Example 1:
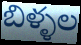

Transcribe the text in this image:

బిళ్ళల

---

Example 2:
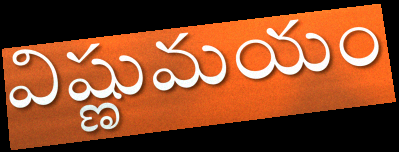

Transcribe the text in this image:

విష్ణుమయం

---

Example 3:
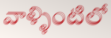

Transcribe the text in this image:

వాళ్ళింటిలో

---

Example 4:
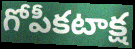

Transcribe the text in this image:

గోపీకటాక్ష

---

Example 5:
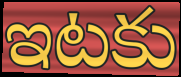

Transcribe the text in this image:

ఇటకు